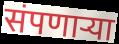
संपणाऱ्या